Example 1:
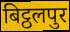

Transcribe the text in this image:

बिट्ठलपुर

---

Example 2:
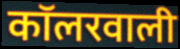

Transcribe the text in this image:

कॉलरवाली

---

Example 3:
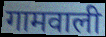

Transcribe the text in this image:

गामवाली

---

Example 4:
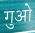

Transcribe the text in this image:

गुओ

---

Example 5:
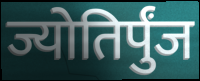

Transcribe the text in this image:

ज्योतिर्पुंज